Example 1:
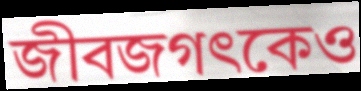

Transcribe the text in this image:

জীবজগৎকেও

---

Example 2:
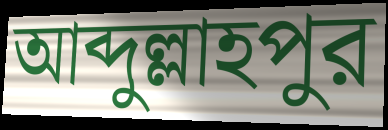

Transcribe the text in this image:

আব্দুল্লাহপুর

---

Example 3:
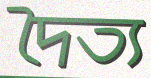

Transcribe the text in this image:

দৈত্য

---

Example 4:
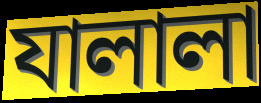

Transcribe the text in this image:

যালালা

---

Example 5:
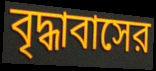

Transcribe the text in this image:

বৃদ্ধাবাসের